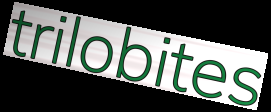
trilobites